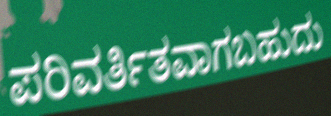
ಪರಿವರ್ತಿತವಾಗಬಹುದು